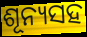
ଶୂନ୍ୟସହ